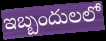
ఇబ్బందులలో